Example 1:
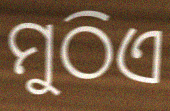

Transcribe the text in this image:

ମୁଠିଏ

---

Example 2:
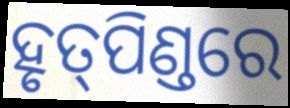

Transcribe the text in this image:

ହୃତ୍‌ପିଣ୍ଡରେ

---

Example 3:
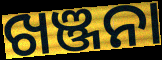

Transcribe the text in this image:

ଖଞ୍ଜନା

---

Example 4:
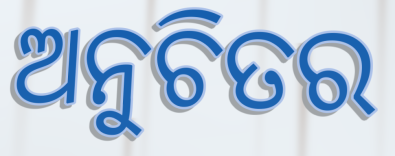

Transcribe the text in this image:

ଅନୁଚିତର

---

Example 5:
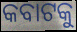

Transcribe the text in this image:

କବାଟକୁ